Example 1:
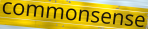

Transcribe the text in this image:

commonsense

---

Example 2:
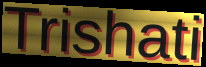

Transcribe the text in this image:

Trishati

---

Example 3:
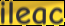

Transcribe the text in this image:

ileac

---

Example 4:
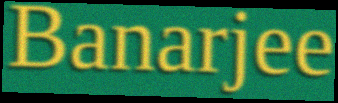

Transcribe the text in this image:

Banarjee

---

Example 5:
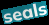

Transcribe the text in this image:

seals